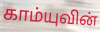
காம்யுவின்